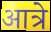
आत्रे